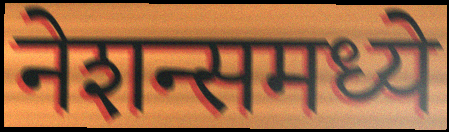
नेशन्समध्ये